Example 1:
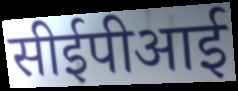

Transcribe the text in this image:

सीईपीआई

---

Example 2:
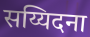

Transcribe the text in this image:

सय्यिदना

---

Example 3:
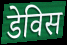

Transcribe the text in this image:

डेविस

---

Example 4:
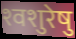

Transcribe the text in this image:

श्वशुरेषु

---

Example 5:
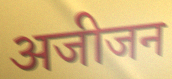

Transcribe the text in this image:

अजीजन